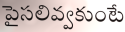
పైసలివ్వకుంటే